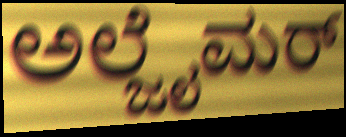
ಅಲ್ಜೈಮರ್